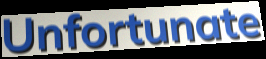
Unfortunate